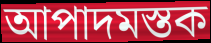
আপাদমস্তক